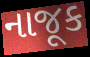
નાજૂક